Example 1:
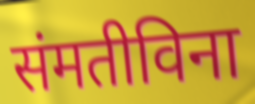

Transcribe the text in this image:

संमतीविना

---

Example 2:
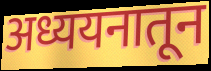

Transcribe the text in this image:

अध्ययनातून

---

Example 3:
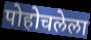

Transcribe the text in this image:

पोहोचलेला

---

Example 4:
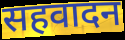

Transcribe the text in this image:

सहवादन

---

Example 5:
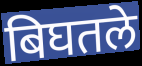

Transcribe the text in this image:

बिघतले